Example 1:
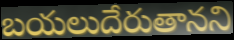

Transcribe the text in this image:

బయలుదేరుతానని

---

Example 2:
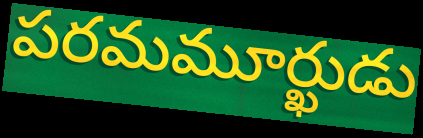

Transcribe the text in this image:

పరమమూర్ఖుడు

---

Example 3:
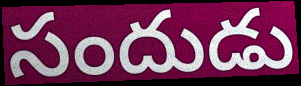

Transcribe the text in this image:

సందుడు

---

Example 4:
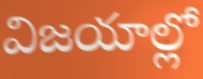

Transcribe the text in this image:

విజయాల్లో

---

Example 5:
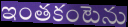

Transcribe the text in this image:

ఇంతకంటెను